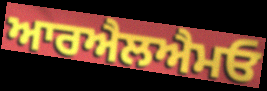
ਆਰਐਲਐਮਓ